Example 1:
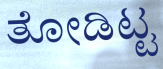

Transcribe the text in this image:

ತೋಡಿಟ್ಟ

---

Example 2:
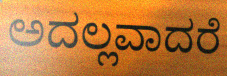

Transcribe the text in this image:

ಅದಲ್ಲವಾದರೆ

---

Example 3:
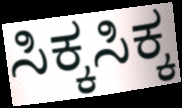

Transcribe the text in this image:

ಸಿಕ್ಕಸಿಕ್ಕ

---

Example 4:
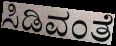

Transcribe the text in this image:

ಸಿಡಿವಂತೆ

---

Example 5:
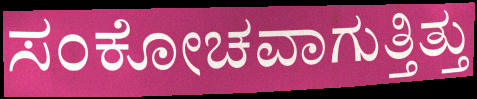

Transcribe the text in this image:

ಸಂಕೋಚವಾಗುತ್ತಿತ್ತು